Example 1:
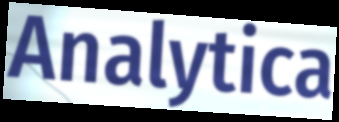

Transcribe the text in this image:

Analytica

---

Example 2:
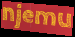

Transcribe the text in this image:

njemu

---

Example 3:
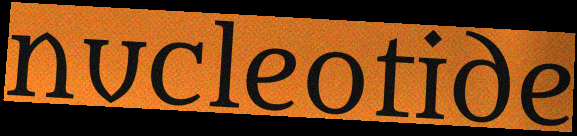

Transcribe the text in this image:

nucleotide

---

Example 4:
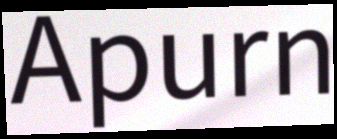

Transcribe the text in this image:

Apurn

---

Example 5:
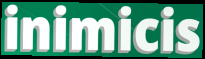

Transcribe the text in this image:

inimicis